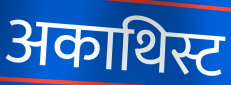
अकाथिस्ट